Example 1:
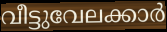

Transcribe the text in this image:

വീട്ടുവേലക്കാർ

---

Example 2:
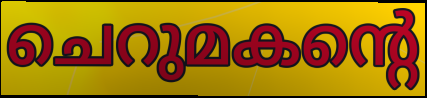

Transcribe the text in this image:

ചെറുമകന്റെ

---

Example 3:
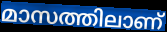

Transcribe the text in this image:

മാസത്തിലാണ്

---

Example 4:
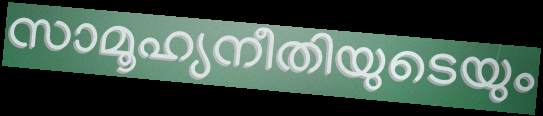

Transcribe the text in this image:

സാമൂഹ്യനീതിയുടെയും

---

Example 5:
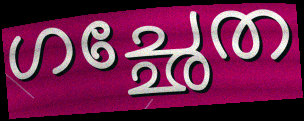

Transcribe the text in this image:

ഗച്ഛേത